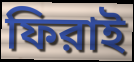
ফিরাই